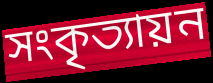
সংকৃত্যায়ন